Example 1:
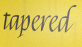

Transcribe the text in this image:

tapered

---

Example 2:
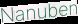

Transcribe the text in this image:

Nanuben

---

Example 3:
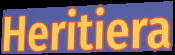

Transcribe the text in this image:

Heritiera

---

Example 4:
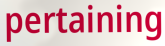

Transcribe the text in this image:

pertaining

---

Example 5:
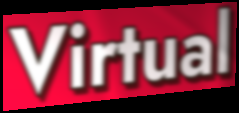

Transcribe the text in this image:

Virtual